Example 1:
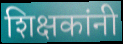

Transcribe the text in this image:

शिक्षकांनी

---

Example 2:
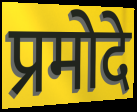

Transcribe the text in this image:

प्रमोदे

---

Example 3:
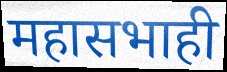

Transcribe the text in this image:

महासभाही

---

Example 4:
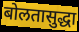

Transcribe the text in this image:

बोलतासुद्धा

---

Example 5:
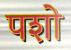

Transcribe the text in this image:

पशो